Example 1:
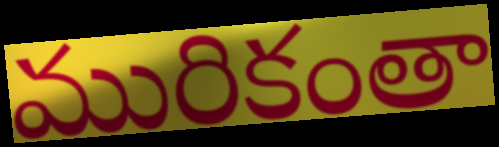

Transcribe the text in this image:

మురికంతా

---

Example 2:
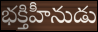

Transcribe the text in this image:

భక్తిహీనుడు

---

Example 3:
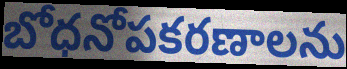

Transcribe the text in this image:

బోధనోపకరణాలను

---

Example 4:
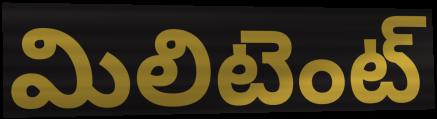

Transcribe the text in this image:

మిలిటెంట్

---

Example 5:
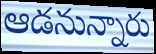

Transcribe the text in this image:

ఆడనున్నారు